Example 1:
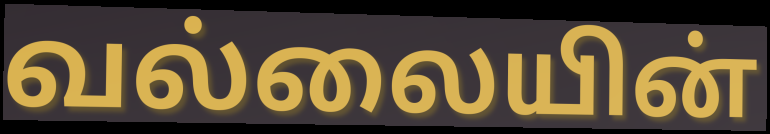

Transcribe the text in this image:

வல்லையின்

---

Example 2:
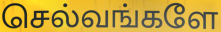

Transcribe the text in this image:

செல்வங்களே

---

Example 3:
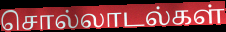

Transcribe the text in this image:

சொல்லாடல்கள்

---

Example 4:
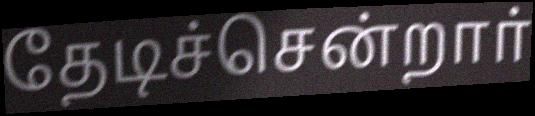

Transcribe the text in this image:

தேடிச்சென்றார்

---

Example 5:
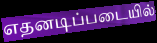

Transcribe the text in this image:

எதனடிப்படையில்